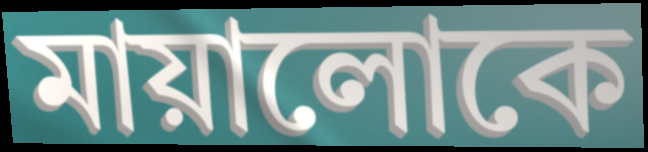
মায়ালোকে